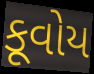
કૂવોય